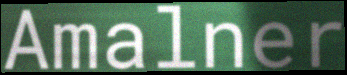
Amalner